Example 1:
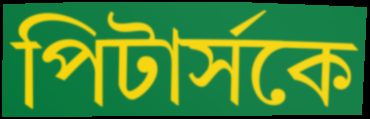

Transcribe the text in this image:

পিটার্সকে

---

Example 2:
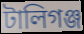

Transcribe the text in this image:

টালিগঞ্জ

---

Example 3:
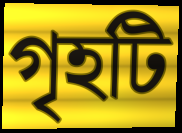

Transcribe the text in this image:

গৃহটি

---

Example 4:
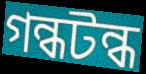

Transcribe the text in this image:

গন্ধটন্ধ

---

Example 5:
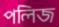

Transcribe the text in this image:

পলিজ